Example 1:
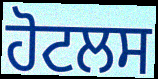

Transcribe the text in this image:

ਹੋਟਲਸ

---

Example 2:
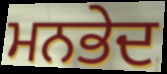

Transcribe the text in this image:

ਮਨਭੇਦ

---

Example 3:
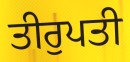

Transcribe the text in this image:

ਤੀਰੁਪਤੀ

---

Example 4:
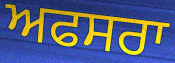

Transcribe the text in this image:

ਅਫਸਰਾ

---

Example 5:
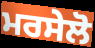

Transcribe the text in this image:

ਮਰਸੇਲੋ